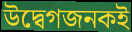
উদ্বেগজনকই